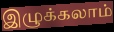
இழுக்கலாம்